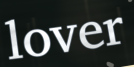
lover